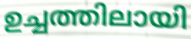
ഉച്ചത്തിലായി